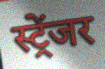
स्ट्रेंजर